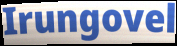
Irungovel